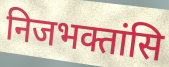
निजभक्तांसि